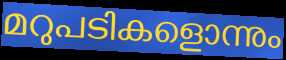
മറുപടികളൊന്നും